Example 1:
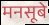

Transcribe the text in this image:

मनसूबे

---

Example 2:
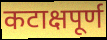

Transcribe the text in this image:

कटाक्षपूर्ण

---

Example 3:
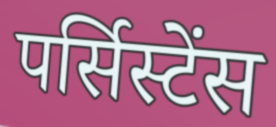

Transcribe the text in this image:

पर्सिस्टेंस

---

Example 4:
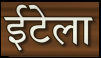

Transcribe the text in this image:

ईटेला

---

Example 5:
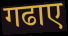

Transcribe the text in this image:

गढाए